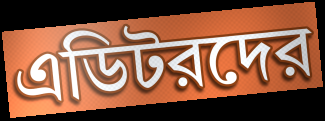
এডিটরদের